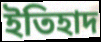
ইতিহাদ